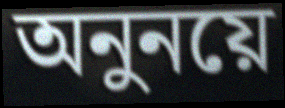
অনুনয়ে